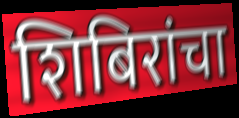
शिबिरांचा